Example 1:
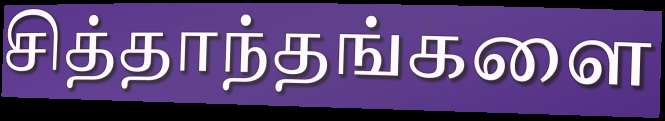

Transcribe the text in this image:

சித்தாந்தங்களை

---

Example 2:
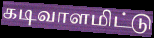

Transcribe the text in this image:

கடிவாளமிட்டு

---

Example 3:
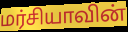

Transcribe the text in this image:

மர்சியாவின்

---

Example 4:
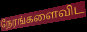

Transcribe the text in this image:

நேரங்களைவிட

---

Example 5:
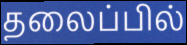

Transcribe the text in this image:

தலைப்பில்